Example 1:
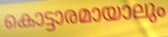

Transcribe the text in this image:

കൊട്ടാരമായാലും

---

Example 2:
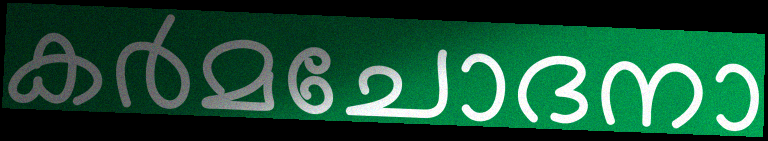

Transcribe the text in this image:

കർമചോദനാ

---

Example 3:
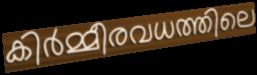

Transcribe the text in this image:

കിർമ്മീരവധത്തിലെ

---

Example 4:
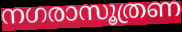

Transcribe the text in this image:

നഗരാസൂത്രണ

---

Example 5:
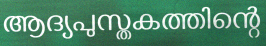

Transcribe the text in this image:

ആദ്യപുസ്തകത്തിന്റെ